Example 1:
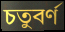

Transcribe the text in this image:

চতুবৰ্ণ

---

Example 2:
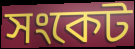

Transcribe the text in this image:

সংকেট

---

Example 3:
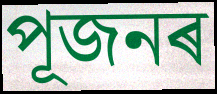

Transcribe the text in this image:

পূজনৰ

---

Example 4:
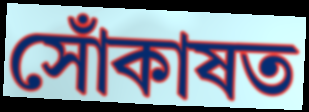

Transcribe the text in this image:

সোঁকাষত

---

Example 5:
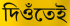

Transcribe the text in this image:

দিওঁতেই